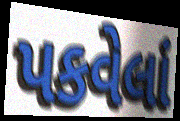
પકવેલાં